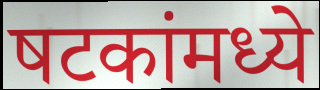
षटकांमध्ये